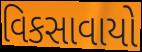
વિકસાવાયો